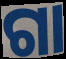
ଗା